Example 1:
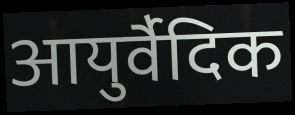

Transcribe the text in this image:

आयुर्वैदिक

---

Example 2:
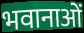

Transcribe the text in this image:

भवानाओं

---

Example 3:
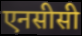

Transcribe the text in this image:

एनसीसी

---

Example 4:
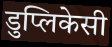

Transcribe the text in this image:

डुप्लिकेसी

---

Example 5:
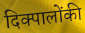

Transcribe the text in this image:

दिक्पालोंकी